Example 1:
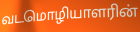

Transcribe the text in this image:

வடமொழியாளரின்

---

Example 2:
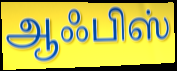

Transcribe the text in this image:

ஆஃபிஸ்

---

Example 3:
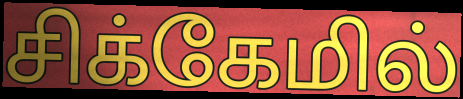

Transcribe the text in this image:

சிக்கேமில்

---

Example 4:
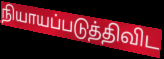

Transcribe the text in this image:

நியாயப்படுத்திவிட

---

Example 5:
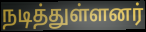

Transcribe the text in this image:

நடித்துள்ளனர்